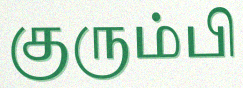
குரும்பி